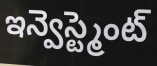
ఇన్వెస్ట్మెంట్